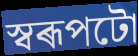
স্বৰূপটো